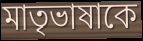
মাতৃভাষাকে